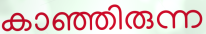
കാഞ്ഞിരുന്ന